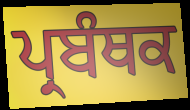
ਪ੍ਰਬੰਥਕ